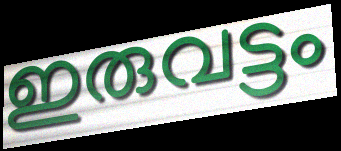
ഇരുവട്ടം